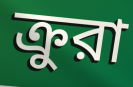
ক্রুরা